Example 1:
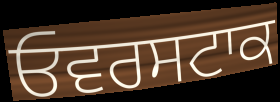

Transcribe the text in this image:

ਓਵਰਸਟਾਕ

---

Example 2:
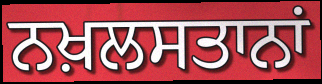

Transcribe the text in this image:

ਨਖ਼ਲਸਤਾਨਾਂ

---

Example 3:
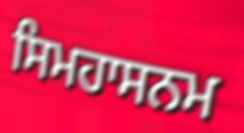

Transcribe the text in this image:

ਸਿਮਹਾਸਨਮ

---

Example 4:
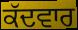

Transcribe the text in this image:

ਕੱਦਵਾਰ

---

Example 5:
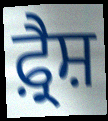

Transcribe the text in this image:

ਫ਼੍ਰੈਸ਼